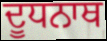
ਦੂਧਨਾਥ